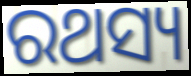
ରଥସ୍ୟ